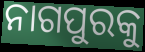
ନାଗପୁରକୁ